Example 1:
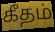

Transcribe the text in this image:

கீதம்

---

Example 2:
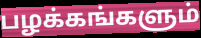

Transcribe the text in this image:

பழக்கங்களும்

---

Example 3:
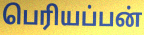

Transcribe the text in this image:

பெரியப்பன்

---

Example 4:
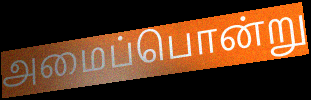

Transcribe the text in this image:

அமைப்பொன்று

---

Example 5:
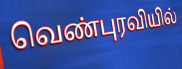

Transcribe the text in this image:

வெண்புரவியில்